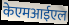
केएमआईएल